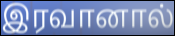
இரவானால்